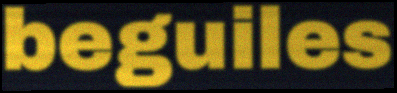
beguiles